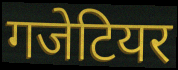
गजेटियर